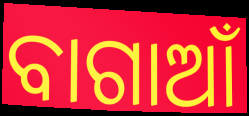
ବାଗାଆଁ